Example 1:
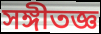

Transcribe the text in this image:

সঙ্গীতজ্ঞ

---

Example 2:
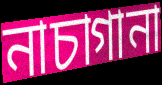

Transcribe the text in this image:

নাচাগানা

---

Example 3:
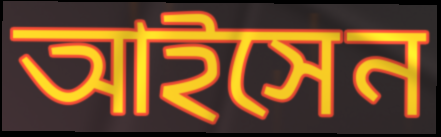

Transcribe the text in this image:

আইসেন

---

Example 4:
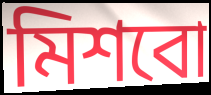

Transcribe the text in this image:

মিশবো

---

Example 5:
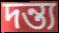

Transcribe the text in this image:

দন্ত্য